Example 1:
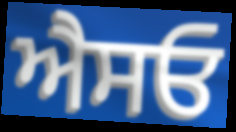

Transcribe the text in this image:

ਐਸਓ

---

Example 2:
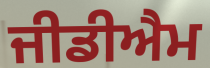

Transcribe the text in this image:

ਜੀਡੀਐਮ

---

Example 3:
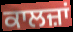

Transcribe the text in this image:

ਕਾਲਜ਼ਾਂ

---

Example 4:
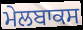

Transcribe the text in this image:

ਮੇਲਬਾਕਸ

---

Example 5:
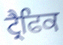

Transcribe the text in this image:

ਟ੍ਰੈਫਿਕ